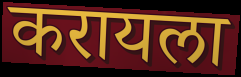
करायला